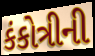
કંકોત્રીની